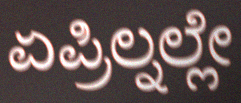
ಏಪ್ರಿಲ್ನಲ್ಲೇ